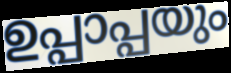
ഉപ്പാപ്പയും